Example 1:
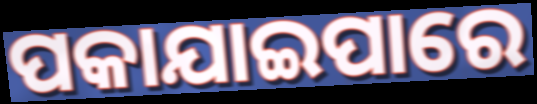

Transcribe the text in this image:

ପକାଯାଇପାରେ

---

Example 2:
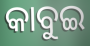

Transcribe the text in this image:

କାବୁଇ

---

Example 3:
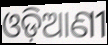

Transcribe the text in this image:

ଓଡ଼ିଆଣୀ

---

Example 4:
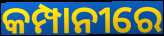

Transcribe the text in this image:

କମ୍ପାନୀରେ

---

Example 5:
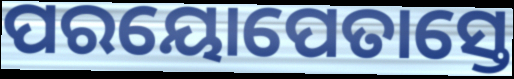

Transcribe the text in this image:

ପରୟୋପେତାସ୍ତେ